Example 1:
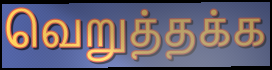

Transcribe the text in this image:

வெறுத்தக்க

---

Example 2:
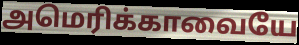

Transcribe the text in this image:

அமெரிக்காவையே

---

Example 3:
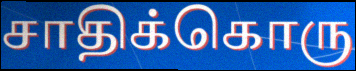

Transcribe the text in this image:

சாதிக்கொரு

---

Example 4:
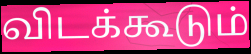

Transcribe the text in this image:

விடக்கூடும்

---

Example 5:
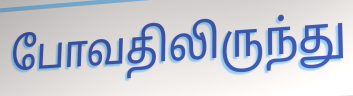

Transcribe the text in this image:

போவதிலிருந்து